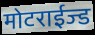
मोटराईज्ड